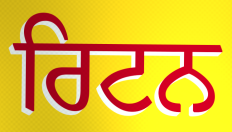
ਰਿਟਨ